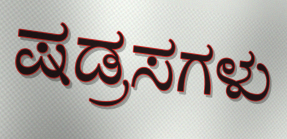
ಷಡ್ರಸಗಳು